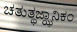
ಚತುತ್ಥಜ್ಝಾನಿಕಂ